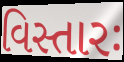
વિસ્તારઃ